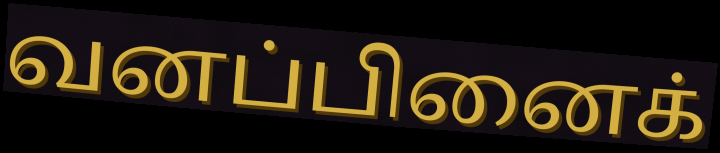
வனப்பினைக்